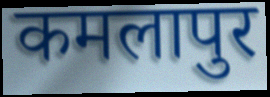
कमलापुर